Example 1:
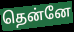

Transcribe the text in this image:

தென்னே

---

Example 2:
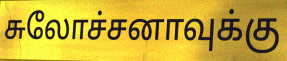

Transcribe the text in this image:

சுலோச்சனாவுக்கு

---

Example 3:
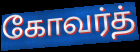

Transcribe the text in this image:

கோவர்த்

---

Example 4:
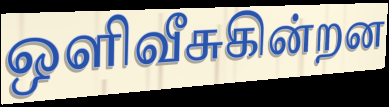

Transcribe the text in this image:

ஒளிவீசுகின்றன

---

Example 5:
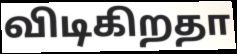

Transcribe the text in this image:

விடிகிறதா